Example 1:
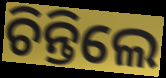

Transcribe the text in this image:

ଚିନ୍ତିଲେ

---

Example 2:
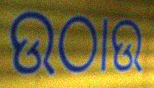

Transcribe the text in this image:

ଉଠାଉ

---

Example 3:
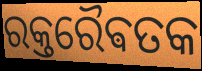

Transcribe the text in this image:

ରକ୍ତରୈଵତକ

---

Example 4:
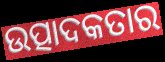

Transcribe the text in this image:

ଉତ୍ପାଦକତାର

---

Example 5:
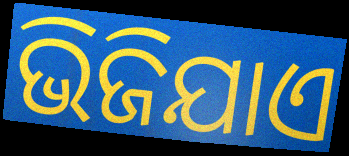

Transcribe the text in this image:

ଭିଜିଯାଏ